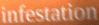
infestation